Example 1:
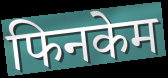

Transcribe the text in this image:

फिनकेम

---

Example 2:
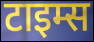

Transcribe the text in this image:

टाइम्स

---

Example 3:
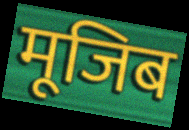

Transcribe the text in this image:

मूजिब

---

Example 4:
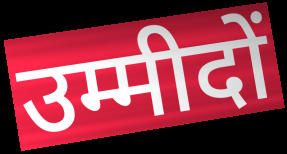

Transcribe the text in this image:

उम्मीदों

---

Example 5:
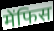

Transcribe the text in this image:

मेंफिस